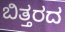
ಬಿತ್ತರದ